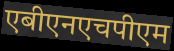
एबीएनएचपीएम